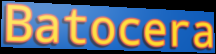
Batocera